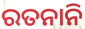
ରତନାନି